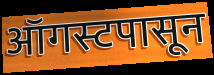
ऑगस्टपासून